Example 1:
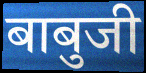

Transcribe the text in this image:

बाबुजी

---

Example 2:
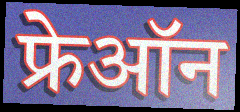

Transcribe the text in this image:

फ्रेऑन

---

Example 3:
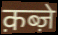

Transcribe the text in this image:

क़ब्ज़े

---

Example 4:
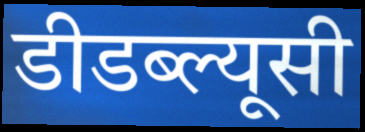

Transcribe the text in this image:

डीडब्ल्यूसी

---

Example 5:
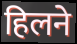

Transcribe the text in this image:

हिलने